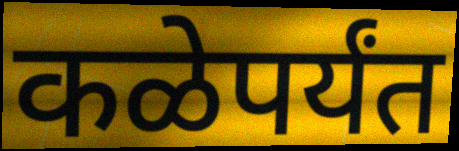
कळेपर्यंत